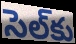
సెల్‌కు